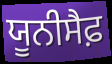
ਯੂਨੀਸੈਫ਼